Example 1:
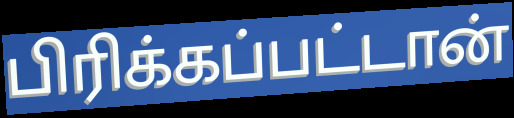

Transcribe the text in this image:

பிரிக்கப்பட்டான்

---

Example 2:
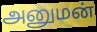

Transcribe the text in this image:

அனுமன்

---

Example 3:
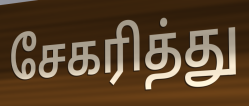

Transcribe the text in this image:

சேகரித்து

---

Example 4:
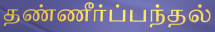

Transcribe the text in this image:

தண்ணீர்ப்பந்தல்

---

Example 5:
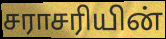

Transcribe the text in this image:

சராசரியின்